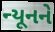
ન્યૂનને